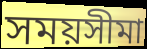
সময়সীমা